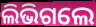
ଲିଭିଗଲେ